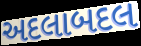
અદલાબદલ